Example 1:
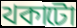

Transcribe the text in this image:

থকাটো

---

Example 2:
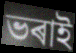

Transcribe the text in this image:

ভৰাই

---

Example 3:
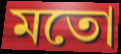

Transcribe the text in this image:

মতো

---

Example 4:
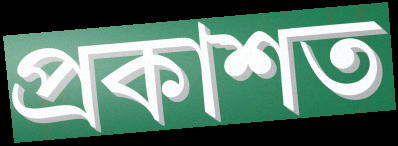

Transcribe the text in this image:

প্ৰকাশত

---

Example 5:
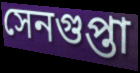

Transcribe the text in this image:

সেনগুপ্তা